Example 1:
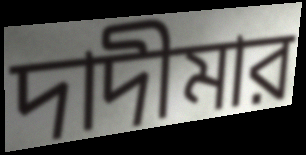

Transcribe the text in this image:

দাদীমার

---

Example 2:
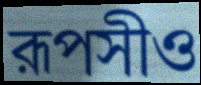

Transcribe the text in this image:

রূপসীও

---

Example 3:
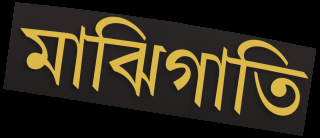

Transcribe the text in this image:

মাঝিগাতি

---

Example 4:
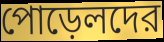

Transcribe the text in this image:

পোড়েলদের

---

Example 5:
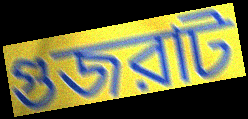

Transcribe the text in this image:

গুজরাট